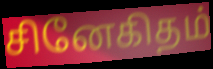
சினேகிதம்